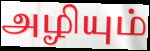
அழியும்